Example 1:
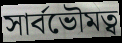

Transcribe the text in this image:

সাৰ্বভৌমত্ব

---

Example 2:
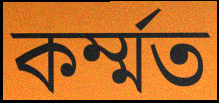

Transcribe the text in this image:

কৰ্ম্মত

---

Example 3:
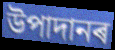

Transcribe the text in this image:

উপাদানৰ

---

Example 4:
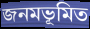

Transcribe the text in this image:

জনমভূমিত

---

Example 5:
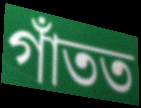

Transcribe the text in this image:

গাঁতত